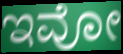
ಇವೋ